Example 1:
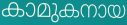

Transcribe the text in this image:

കാമുകനായ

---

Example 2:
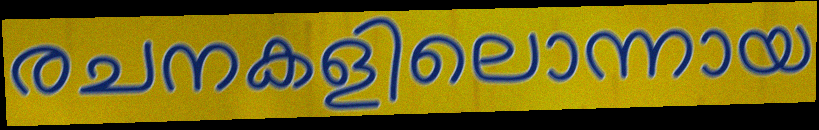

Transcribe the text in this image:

രചനകളിലൊന്നായ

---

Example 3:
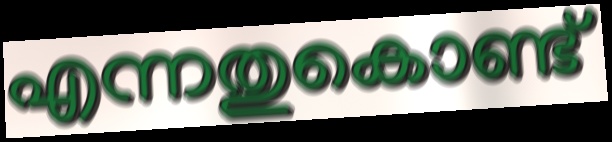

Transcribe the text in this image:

എന്നതുകൊണ്ട്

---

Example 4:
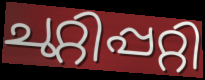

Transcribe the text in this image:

ചുറ്റിപ്പറ്റി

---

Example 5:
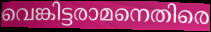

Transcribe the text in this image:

വെങ്കിട്ടരാമനെതിരെ